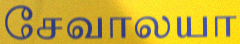
சேவாலயா